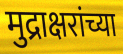
मुद्राक्षरांच्या